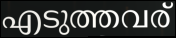
എടുത്തവര്